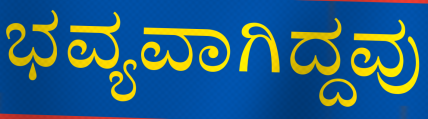
ಭವ್ಯವಾಗಿದ್ದವು